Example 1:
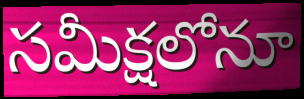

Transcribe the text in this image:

సమీక్షలోనూ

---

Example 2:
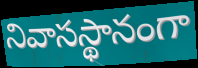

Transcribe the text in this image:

నివాసస్థానంగా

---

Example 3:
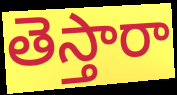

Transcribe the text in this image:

తెస్తారా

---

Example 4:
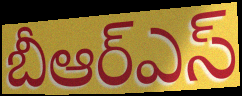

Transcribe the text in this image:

బీఆర్ఎస్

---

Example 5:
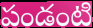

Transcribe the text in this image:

పండంటి